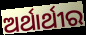
ଅର୍ଥାର୍ଥୀର